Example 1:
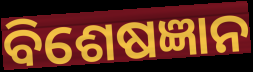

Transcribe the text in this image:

ବିଶେଷଜ୍ଞାନ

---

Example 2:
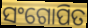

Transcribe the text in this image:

ସଂଗୋପିତ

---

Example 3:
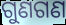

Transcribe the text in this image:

ଗୁଣଗଣ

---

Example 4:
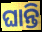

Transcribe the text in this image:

ଘାନ୍ତି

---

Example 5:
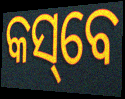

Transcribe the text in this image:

କସ୍‌ବେ